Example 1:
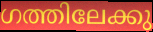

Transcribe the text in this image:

ഗത്തിലേക്കു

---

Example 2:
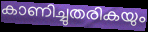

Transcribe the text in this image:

കാണിച്ചുതരികയും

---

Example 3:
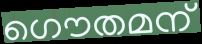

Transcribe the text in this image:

ഗൌതമന്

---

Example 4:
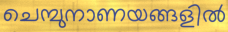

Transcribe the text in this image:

ചെമ്പുനാണയങ്ങളിൽ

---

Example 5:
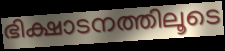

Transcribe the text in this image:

ഭിക്ഷാടനത്തിലൂടെ